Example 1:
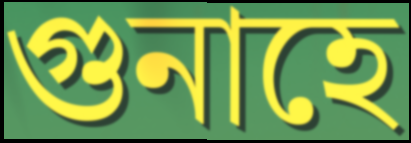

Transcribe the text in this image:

গুনাহে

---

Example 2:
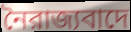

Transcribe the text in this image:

নৈরাজ্যবাদে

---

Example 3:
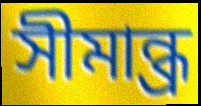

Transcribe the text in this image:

সীমান্ধ্র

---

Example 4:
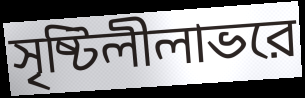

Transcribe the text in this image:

সৃষ্টিলীলাভরে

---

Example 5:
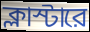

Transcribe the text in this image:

ক্লাস্টারে